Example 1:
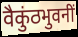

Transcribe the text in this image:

वैकुंठभुवनीं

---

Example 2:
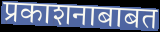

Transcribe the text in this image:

प्रकाशनाबाबत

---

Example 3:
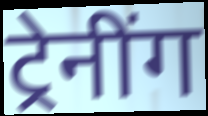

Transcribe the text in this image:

ट्रेनींग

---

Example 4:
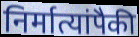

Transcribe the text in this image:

निर्मात्यांपैकी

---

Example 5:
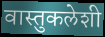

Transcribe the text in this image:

वास्तुकलेशी